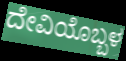
ದೇವಿಯೊಬ್ಬಳ